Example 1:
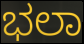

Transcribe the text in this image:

ಭಲಾ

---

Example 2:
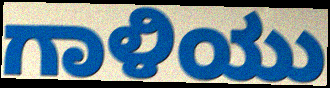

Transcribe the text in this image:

ಗಾಳಿಯು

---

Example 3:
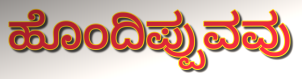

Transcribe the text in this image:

ಹೊಂದಿಪ್ಪುವವು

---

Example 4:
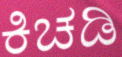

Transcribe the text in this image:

ಕಿಚಡಿ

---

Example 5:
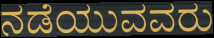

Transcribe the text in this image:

ನಡೆಯುವವರು